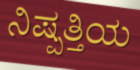
ನಿಷ್ಪತ್ತಿಯ